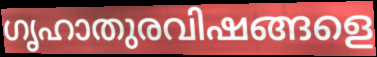
ഗൃഹാതുരവിഷങ്ങളെ